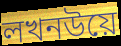
লখনউয়ে